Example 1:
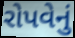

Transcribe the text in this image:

રોપવેનું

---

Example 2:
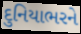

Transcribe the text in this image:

દુનિયાભરને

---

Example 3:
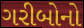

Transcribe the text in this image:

ગરીબોનો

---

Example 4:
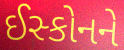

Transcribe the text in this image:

ઈસ્કોનને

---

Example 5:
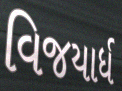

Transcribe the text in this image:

વિજયાર્ધ